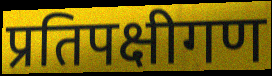
प्रतिपक्षीगण